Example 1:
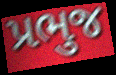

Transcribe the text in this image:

પ્રભુજ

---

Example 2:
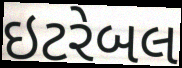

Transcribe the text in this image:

ઇટરેબલ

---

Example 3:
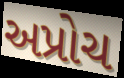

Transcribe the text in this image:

અપ્રોચ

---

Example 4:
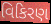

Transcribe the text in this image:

વિકિરણ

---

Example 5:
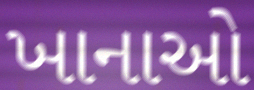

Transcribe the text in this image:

ખાનાઓ